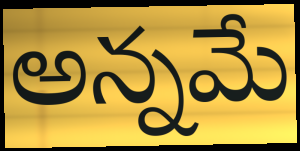
అన్నమే